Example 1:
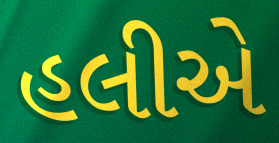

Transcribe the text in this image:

હલીએ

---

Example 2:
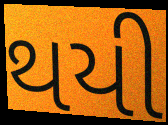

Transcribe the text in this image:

થયી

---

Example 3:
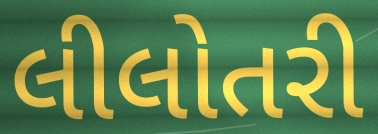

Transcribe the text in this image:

લીલોતરી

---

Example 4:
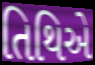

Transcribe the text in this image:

તિથિએ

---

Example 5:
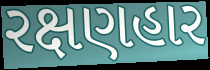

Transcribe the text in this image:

રક્ષણહાર